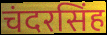
चंदरसिंह